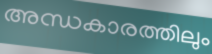
അന്ധകാരത്തിലും